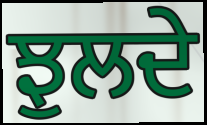
ਝੁਲਦੇ